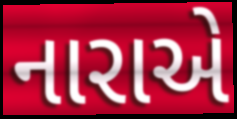
નારાએ